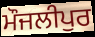
ਮੌਜਲੀਪੁਰ